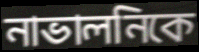
নাভালনিকে